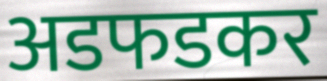
अडफडकर